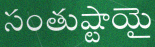
సంతుష్టాయై